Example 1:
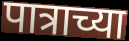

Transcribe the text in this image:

पात्राच्‍या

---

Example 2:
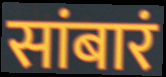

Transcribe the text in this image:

सांबारं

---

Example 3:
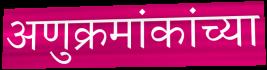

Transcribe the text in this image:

अणुक्रमांकांच्या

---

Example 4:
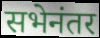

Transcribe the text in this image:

सभेनंतर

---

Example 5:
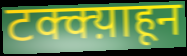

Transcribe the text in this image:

टक्क्य़ाहून